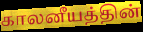
காலனீயத்தின்